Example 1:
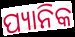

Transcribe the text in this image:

ପ୍ୟାନିକ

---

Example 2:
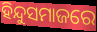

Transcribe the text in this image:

ହିନ୍ଦୁସମାଜରେ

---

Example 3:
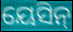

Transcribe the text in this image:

ୟେସିନ୍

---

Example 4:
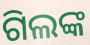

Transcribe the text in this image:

ଗିଲଙ୍କ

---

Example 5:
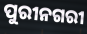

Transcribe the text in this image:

ପୁରୀନଗରୀ